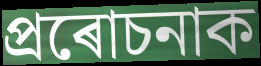
প্ৰৰোচনাক